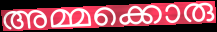
അമ്മക്കൊരു